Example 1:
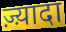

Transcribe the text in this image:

ज़्य़ादा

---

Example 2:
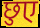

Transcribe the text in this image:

छुए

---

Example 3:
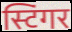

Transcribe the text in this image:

स्टिंगर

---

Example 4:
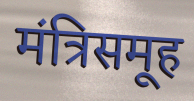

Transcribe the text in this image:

मंत्रिसमूह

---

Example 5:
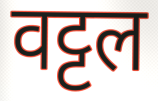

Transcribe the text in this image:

वट्टल